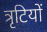
त्रृटियों